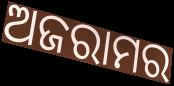
ଅଜରାମର